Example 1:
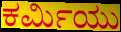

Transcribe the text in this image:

ಕರ್ಮಿಯು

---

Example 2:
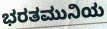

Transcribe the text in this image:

ಭರತಮುನಿಯ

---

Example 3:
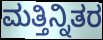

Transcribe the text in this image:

ಮತ್ತಿನ್ನಿತರ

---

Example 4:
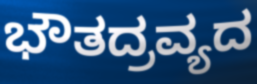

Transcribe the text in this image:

ಭೌತದ್ರವ್ಯದ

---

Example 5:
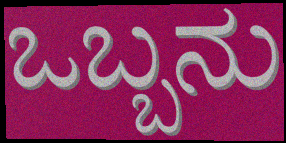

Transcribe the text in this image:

ಒಬ್ಬನು